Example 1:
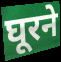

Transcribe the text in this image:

घूरने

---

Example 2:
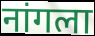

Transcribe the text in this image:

नांगला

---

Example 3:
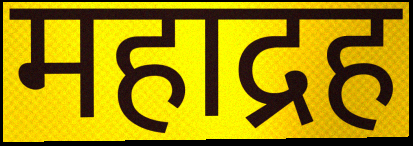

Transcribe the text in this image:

महाद्रह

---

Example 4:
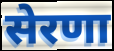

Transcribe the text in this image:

सेरणा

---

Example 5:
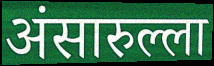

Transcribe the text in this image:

अंसारुल्ला